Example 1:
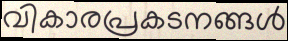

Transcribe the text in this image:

വികാരപ്രകടനങ്ങൾ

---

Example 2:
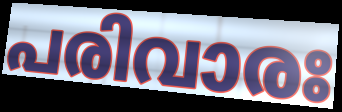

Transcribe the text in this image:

പരിവാരഃ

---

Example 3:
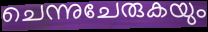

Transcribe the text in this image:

ചെന്നുചേരുകയും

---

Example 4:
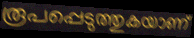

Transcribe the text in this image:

രൂപപ്പെടുത്തുകയാണ്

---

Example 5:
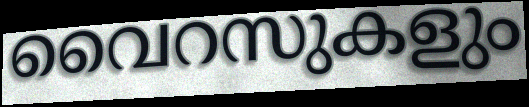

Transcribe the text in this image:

വൈറസുകളും